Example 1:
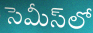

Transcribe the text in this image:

సెమీస్‌లో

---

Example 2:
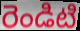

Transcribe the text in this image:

రెండిటి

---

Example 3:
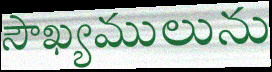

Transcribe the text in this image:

సౌఖ్యములును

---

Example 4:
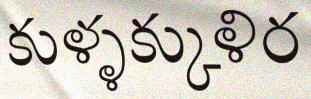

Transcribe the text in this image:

కుళ్ళక్కుళిర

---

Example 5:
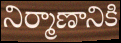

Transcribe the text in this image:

నిర్మాణానికి